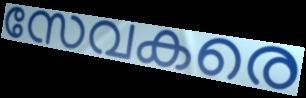
സേവകരെ